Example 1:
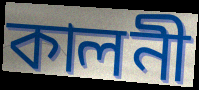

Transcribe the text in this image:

কালনী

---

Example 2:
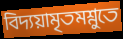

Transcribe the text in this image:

বিদ্যয়ামৃতমশ্নুতে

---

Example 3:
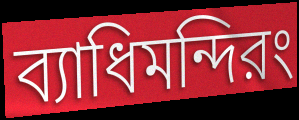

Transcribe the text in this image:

ব্যাধিমন্দিরং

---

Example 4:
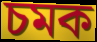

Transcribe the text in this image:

চমক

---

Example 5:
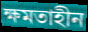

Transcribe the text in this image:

ক্ষমতাহীন